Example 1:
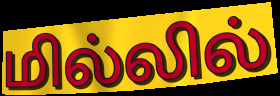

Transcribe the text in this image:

மில்லில்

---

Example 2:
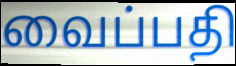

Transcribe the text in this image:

வைப்பதி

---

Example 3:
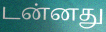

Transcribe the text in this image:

டன்னது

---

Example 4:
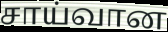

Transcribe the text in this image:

சாய்வான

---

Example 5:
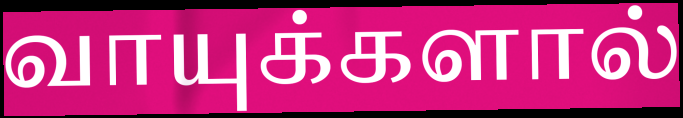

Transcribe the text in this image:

வாயுக்களால்